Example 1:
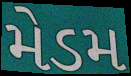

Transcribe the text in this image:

મેડમ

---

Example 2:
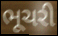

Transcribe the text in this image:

ભૂચરી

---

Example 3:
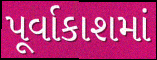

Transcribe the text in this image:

પૂર્વાકાશમાં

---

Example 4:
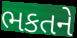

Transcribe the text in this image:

ભકતને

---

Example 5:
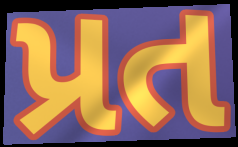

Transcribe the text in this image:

પ્રત